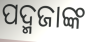
ପଦ୍ମଜାଙ୍କ